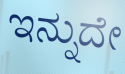
ಇನ್ನುದೇ